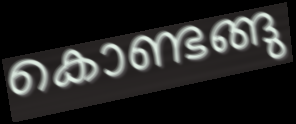
കൊണ്ടങ്ങു